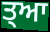
ਤ੍ਆ